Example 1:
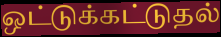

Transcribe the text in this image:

ஒட்டுக்கட்டுதல்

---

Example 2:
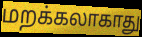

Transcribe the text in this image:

மறக்கலாகாது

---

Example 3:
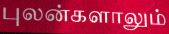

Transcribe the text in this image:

புலன்களாலும்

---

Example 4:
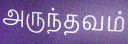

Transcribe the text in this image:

அருந்தவம்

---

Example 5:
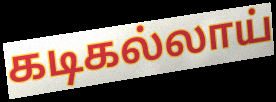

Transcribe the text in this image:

கடிகல்லாய்